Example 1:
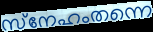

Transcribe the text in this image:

സ്‌നേഹംതന്നെ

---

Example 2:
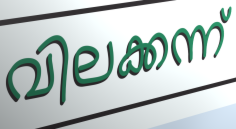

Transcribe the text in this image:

വിലക്കന്ന്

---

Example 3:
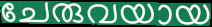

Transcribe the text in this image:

ചേരുവയായ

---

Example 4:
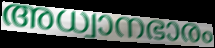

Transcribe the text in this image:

അധ്വാനഭാരം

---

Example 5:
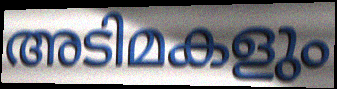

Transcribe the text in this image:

അടിമകളും